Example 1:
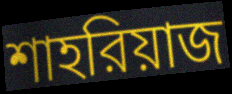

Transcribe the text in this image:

শাহরিয়াজ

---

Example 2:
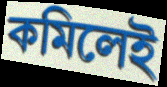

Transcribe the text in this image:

কমিলেই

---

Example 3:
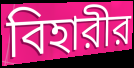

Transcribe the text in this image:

বিহারীর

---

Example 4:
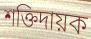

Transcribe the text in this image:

শক্তিদায়ক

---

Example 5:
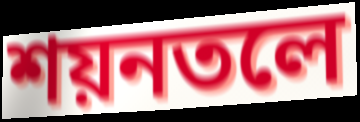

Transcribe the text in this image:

শয়নতলে